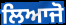
ਲਿਆਜੋ